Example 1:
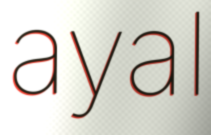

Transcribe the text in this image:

ayal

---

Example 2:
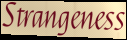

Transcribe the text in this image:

Strangeness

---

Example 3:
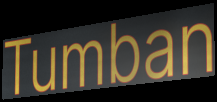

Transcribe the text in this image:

Tumban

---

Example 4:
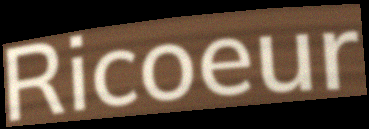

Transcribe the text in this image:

Ricoeur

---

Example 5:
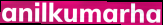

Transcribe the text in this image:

anilkumarha